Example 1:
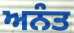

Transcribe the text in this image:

ਅਨੰਤ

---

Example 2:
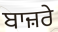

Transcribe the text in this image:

ਬਾਜ਼ਰੇ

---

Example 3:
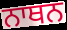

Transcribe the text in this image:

ਨਾਥਨ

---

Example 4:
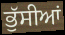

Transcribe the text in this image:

ਭੁੱਸੀਆਂ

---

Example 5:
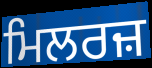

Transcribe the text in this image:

ਮਿਲਰਜ਼